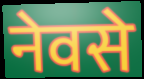
नेवसे